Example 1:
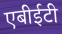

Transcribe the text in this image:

एबीईटी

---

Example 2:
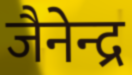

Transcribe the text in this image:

जैनेन्‍द्र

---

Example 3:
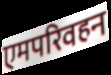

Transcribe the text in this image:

एमपरिवहन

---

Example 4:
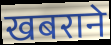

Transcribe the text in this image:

खबराने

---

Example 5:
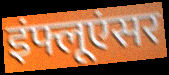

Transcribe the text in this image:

इंफ्लूएंसर